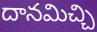
దానమిచ్చి